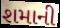
શમાની